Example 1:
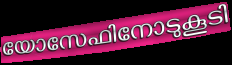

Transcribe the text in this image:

യോസേഫിനോടുകൂടി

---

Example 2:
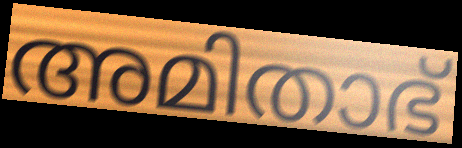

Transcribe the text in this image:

അമിതാഭ്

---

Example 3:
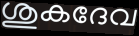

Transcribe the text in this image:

ശുകദേവ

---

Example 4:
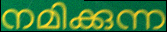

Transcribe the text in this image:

നമിക്കുന്ന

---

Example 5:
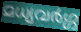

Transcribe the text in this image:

മധ്യവർഗ്ഗ